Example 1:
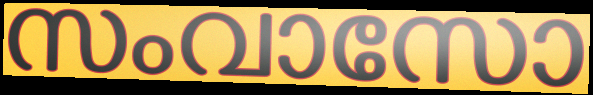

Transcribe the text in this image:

സംവാസോ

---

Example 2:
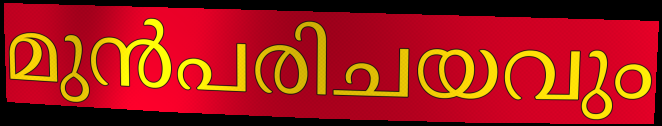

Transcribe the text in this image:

മുൻപരിചയവും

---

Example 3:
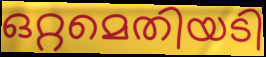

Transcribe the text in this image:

ഒറ്റമെതിയടി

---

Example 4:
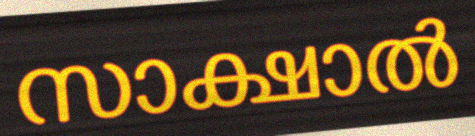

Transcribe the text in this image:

സാക്ഷാൽ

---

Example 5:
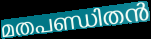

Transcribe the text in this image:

മതപണ്ഡിതൻ